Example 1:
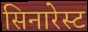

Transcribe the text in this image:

सिनारेस्ट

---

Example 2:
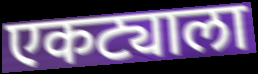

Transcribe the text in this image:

एकट्याला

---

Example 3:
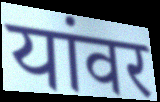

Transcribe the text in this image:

यांवर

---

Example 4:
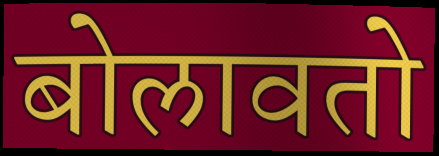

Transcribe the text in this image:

बोलावतो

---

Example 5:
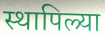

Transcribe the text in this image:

स्थापिल्या